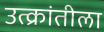
उत्क्रांतीला